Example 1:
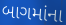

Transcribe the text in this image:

બાગમાંના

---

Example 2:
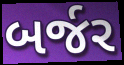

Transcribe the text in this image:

બર્જર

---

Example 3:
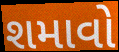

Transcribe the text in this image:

શમાવો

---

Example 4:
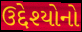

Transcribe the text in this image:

ઉદ્દેશ્યોનો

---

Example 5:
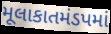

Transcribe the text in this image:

મૂલાકાતમંડપમાં